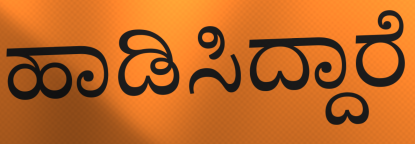
ಹಾಡಿಸಿದ್ದಾರೆ